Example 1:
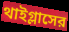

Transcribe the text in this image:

থাইগ্লাসের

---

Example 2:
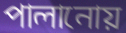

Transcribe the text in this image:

পালানোয়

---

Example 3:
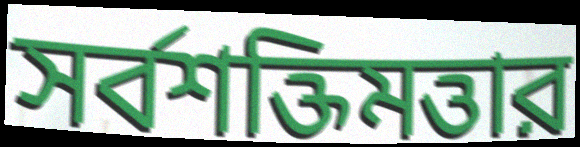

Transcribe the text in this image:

সর্বশক্তিমত্তার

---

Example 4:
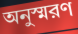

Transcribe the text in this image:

অনুস্মরণ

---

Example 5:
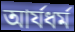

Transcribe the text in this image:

আর্যধর্ম